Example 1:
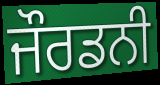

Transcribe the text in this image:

ਜੌਰਡਨੀ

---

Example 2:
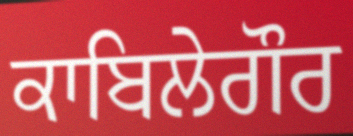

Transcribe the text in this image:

ਕਾਬਿਲੇਗੌਰ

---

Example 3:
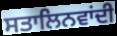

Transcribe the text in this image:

ਸਤਾਲਿਨਵਾਂਦੀ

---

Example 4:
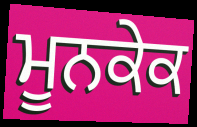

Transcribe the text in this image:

ਮੂਨਕੇਕ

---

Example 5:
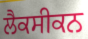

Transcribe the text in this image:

ਲੈਕਸੀਕਨ